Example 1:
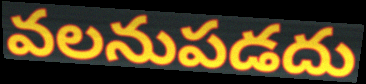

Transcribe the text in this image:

వలనుపడదు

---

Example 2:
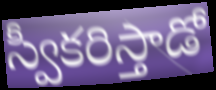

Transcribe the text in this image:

స్వీకరిస్తాడో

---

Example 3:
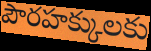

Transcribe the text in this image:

పౌరహక్కులకు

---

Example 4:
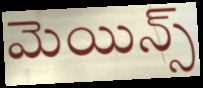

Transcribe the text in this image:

మెయిన్స్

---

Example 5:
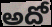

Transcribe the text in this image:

అదో